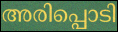
അരിപ്പൊടി